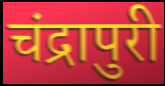
चंद्रापुरी